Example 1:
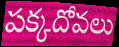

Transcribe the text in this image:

పక్కదోవలు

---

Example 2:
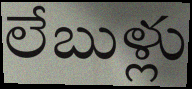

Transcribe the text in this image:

లేబుళ్లు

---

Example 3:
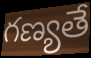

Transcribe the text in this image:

గణ్యతే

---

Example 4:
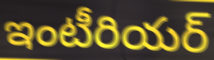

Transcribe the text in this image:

ఇంటీరియర్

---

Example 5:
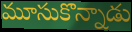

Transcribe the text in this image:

మూసుకొన్నాడు